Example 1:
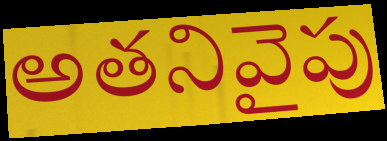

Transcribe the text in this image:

అతనివైపు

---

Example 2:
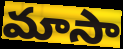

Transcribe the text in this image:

మాసా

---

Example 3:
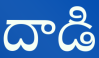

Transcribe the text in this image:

దాడి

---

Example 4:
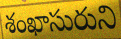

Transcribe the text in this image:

శంఖాసురుని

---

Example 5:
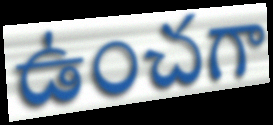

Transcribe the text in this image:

ఉంచగా